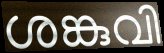
ശങ്കുവി